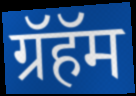
ग्रॅहॅम